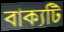
বাক্যটি